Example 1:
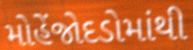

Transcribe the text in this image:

મોહેંજોદડોમાંથી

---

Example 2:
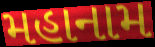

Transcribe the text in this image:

મહાનામ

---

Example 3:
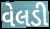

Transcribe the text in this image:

વેલડી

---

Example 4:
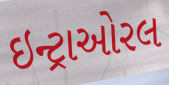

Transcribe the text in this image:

ઇન્ટ્રાઓરલ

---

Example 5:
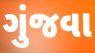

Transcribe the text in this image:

ગુંજવા